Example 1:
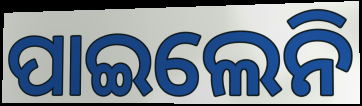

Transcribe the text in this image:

ପାଇଲେନି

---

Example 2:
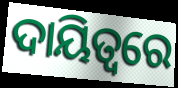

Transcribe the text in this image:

ଦାୟିତ୍ୱରେ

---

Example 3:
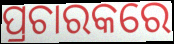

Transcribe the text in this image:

ପ୍ରଚାରକରେ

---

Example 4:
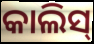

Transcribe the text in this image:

କାଲିସ୍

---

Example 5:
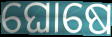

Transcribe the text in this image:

ଘୋଷେ